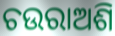
ଚଉରାଅଶି